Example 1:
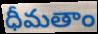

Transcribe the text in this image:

ధీమతాం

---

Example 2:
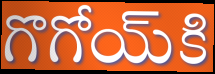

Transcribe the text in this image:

గొగోయ్‌కి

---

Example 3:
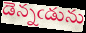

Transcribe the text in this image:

డెన్నఁడును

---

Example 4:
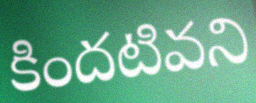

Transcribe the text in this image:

కిందటివని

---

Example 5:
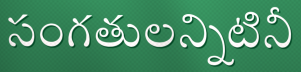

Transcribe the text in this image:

సంగతులన్నిటినీ